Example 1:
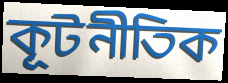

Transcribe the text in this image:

কূটনীতিক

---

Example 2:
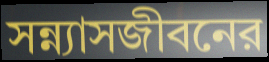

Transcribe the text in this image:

সন্ন্যাসজীবনের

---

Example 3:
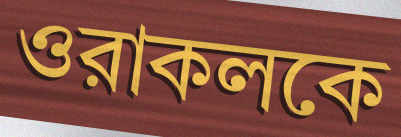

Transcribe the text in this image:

ওরাকলকে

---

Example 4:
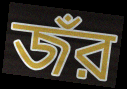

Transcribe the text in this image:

জঁর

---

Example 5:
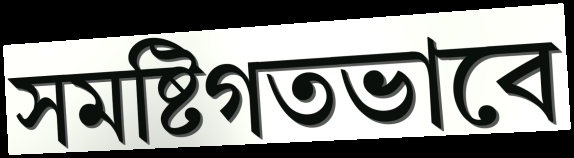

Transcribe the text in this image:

সমষ্টিগতভাবে